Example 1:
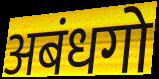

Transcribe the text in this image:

अबंधगो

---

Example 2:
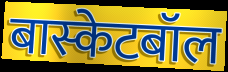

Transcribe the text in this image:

बास्‍केटबॉल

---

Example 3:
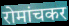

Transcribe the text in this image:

रोमांचकर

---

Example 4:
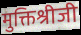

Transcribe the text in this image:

मुक्तिश्रीजी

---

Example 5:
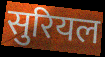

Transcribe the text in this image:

सुरियल